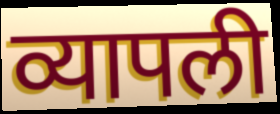
व्यापली